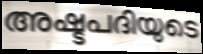
അഷ്ടപദിയുടെ